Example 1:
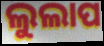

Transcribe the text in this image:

ଲୁଲାପ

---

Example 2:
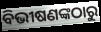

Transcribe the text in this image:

ବିଭୀଷଣଙ୍କଠାରୁ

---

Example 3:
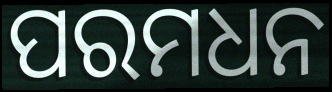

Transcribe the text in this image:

ପରମଧନ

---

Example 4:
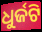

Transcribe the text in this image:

ଧୁର୍ଜଟି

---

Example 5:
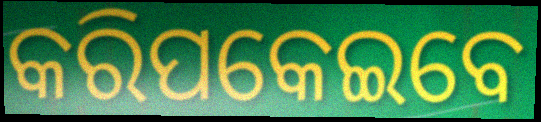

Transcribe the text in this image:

କରିପକେଇବେ